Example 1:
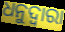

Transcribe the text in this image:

ଧନୁଦ୍ୱାରା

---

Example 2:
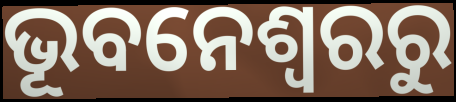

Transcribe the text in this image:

ଭୂବନେଶ୍ୱରରୁ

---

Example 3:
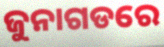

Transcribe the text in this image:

ଜୁନାଗଡରେ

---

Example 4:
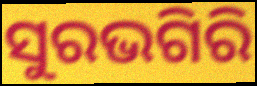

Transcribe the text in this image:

ସୁରଭଗିରି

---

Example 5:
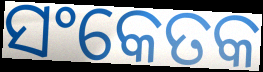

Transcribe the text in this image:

ସଂକେତକ